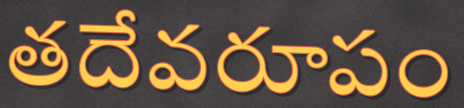
తదేవరూపం